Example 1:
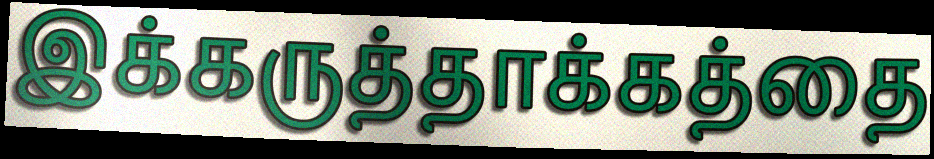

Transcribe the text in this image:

இக்கருத்தாக்கத்தை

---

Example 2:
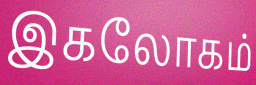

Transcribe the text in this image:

இகலோகம்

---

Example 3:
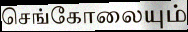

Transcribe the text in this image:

செங்கோலையும்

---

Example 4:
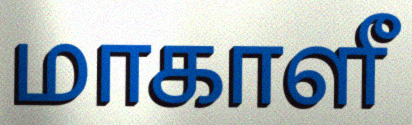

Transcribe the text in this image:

மாகாளீ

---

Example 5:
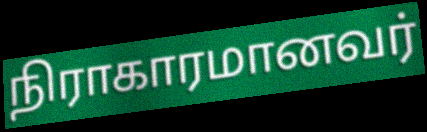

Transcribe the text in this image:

நிராகாரமானவர்